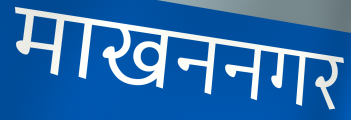
माखननगर